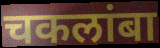
चकलांबा